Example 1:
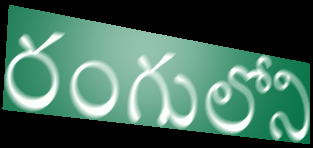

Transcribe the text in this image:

రంగులోని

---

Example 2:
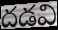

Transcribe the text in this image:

దడవి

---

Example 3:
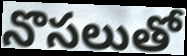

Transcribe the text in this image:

నొసలుతో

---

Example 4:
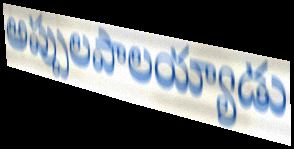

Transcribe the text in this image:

అప్పులపాలయ్యాడు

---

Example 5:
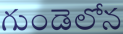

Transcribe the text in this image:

గుండెలోన